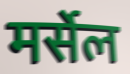
मर्सेल